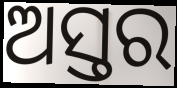
ଅସ୍ତର